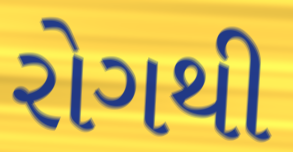
રોગથી